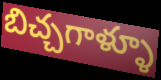
బిచ్చగాళ్ళూ